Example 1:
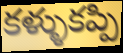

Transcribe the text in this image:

కళ్ళుకప్పి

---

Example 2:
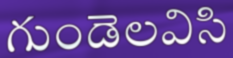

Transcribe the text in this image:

గుండెలవిసి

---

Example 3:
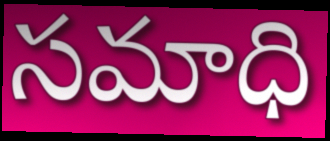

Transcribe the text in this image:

సమాధి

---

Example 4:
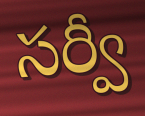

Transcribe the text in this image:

సర్వీ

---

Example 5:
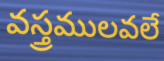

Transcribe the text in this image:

వస్త్రములవలే